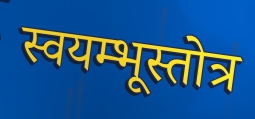
स्वयम्भूस्तोत्र